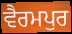
ਵੈਰਮਪੁਰ